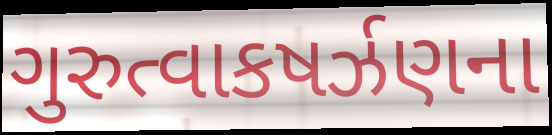
ગુરુત્વાકષર્ઝણના